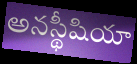
అనస్థీషియా